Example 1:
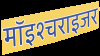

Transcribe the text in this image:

मॉइश्चराइजर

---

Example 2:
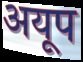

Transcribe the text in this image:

अयूप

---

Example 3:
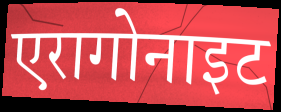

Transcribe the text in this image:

एरागोनाइट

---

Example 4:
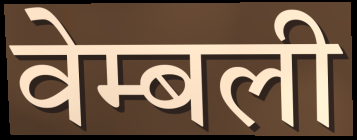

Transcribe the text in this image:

वेम्बली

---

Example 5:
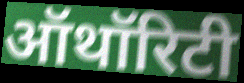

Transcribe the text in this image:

ऑथॉरिटी